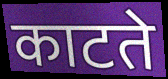
काटते